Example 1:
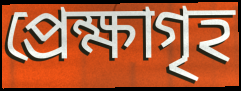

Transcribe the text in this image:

প্ৰেক্ষাগৃহ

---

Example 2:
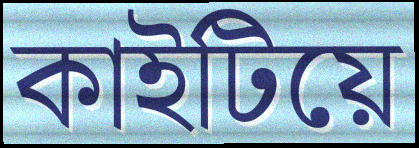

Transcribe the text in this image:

কাইটিয়ে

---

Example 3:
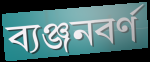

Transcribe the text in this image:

ব্যঞ্জনবৰ্ণ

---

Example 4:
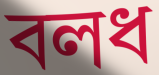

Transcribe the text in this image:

বলধ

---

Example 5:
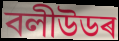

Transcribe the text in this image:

বলীউডৰ